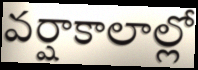
వర్షాకాలాల్లో